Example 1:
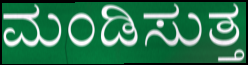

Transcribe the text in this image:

ಮಂಡಿಸುತ್ತ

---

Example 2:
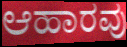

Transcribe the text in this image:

ಆಹಾರವು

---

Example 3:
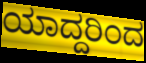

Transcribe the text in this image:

ಯಾದ್ದರಿಂದ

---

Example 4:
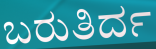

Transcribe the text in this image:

ಬರುತಿರ್ದ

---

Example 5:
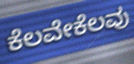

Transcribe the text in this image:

ಕೆಲವೇಕೆಲವು